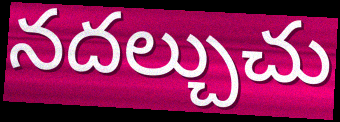
నదల్చుచు